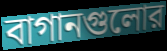
বাগানগুলোর